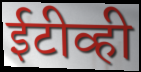
ईटीव्ही